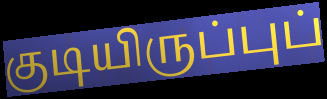
குடியிருப்புப்